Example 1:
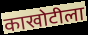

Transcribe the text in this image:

काखोटीला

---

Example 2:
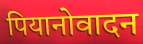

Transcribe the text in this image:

पियानोवादन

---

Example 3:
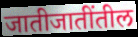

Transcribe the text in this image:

जातीजातींतील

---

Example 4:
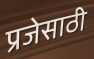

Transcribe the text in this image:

प्रजेसाठी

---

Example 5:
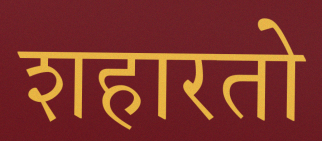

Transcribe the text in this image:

शहारतो